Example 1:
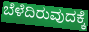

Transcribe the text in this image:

ಬೆಳೆದಿರುವುದಕ್ಕೆ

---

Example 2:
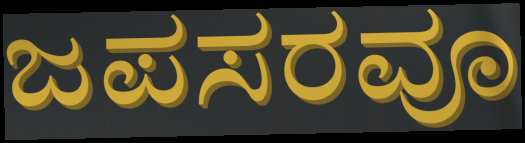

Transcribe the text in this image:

ಜಪಸರವೂ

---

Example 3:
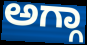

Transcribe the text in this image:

ಅಗ್ಗಾ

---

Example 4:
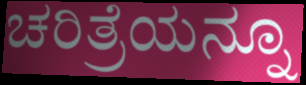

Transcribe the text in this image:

ಚರಿತ್ರೆಯನ್ನೂ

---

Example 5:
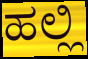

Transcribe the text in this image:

ಹಲ್ಲಿ